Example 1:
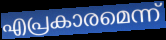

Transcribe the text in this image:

എപ്രകാരമെന്ന്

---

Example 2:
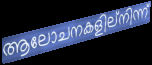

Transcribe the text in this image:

ആലോചനകളില്നിന്ന്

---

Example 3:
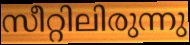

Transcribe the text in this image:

സീറ്റിലിരുന്നു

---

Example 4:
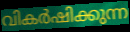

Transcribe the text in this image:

വികർഷിക്കുന്ന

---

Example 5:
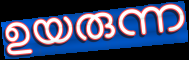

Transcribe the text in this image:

ഉയരുന്ന